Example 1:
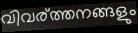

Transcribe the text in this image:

വിവര്ത്തനങ്ങളും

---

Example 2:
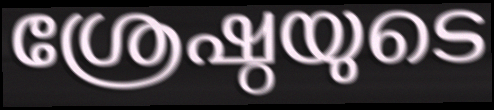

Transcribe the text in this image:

ശ്രേഷ്ഠയുടെ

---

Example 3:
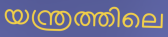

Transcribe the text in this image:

യന്ത്രത്തിലെ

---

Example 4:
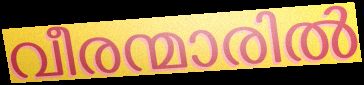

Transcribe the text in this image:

വീരന്മാരിൽ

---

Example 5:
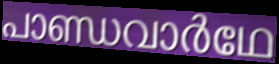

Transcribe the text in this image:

പാണ്ഡവാർഥേ